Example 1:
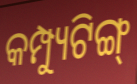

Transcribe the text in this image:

କମ୍ପ୍ୟୁଟିଙ୍ଗ୍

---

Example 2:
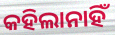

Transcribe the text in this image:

କହିଲାନାହିଁ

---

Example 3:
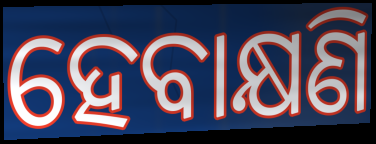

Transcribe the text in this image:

ହେବାକ୍ଷଣି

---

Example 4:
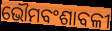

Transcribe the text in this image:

ଭୌମବଂଶାବଳୀ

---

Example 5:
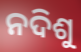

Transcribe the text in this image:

ନଦିଶୁ